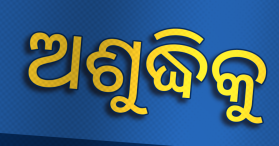
ଅଶୁଦ୍ଧିକୁ